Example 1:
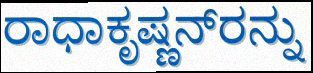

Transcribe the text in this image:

ರಾಧಾಕೃಷ್ಣನ್‌ರನ್ನು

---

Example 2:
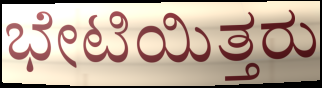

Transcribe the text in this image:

ಭೇಟಿಯಿತ್ತರು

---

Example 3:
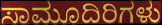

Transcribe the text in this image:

ಸಾಮೂದಿರಿಗಳು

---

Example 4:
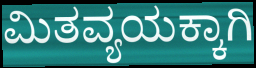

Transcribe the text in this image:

ಮಿತವ್ಯಯಕ್ಕಾಗಿ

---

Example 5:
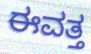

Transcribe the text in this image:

ಈವತ್ತ